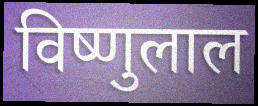
विष्णुलाल